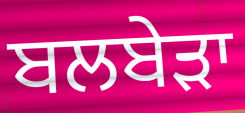
ਬਲਬੇਡ਼ਾ